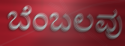
ಬೆಂಬಲವು